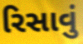
રિસાવું